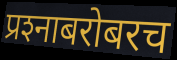
प्रश्‍नाबरोबरच